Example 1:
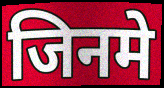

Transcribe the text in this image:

जिनमे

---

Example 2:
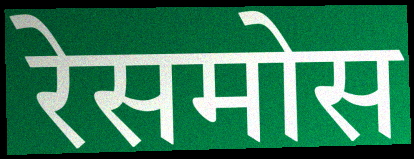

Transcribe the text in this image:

रेसमोस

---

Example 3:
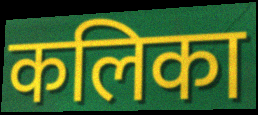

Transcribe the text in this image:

कलिका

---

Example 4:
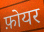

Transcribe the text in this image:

फ़ोयर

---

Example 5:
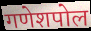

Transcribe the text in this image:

गणेशपोल